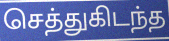
செத்துகிடந்த